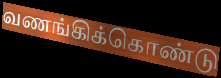
வணங்கிக்கொண்டு